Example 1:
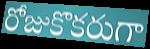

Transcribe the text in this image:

రోజుకొకరుగా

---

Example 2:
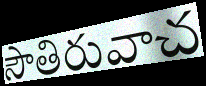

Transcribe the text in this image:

సౌతిరువాచ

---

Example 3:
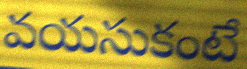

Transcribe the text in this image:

వయసుకంటే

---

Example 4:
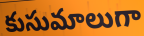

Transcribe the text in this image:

కుసుమాలుగా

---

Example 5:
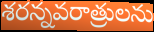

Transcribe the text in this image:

శరన్నవరాత్రులను